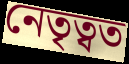
নেতৃত্বত